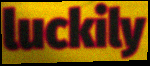
luckily